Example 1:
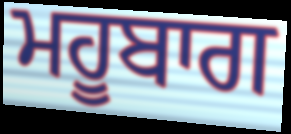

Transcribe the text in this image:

ਮਹੂਬਾਗ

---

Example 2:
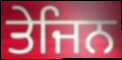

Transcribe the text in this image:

ਤੇਜਿਨ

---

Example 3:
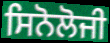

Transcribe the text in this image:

ਸਿਨੋਲੋਜੀ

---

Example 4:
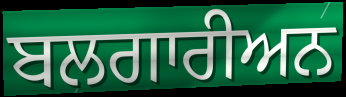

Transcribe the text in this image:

ਬਲਗਾਰੀਅਨ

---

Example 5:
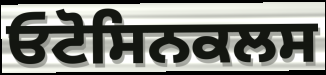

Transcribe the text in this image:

ਓਟੋਸਿਨਕਲਸ